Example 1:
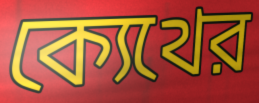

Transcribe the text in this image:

ক্যেথের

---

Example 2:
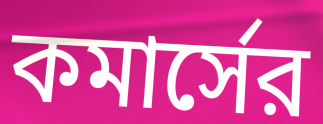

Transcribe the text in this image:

কমার্সের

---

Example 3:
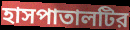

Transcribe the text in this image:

হাসপাতালটির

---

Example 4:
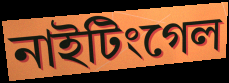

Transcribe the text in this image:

নাইটিংগেল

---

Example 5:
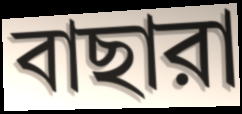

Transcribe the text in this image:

বাছারা